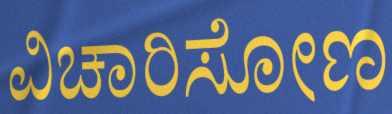
ವಿಚಾರಿಸೋಣ